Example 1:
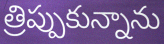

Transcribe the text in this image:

త్రిప్పుకున్నాను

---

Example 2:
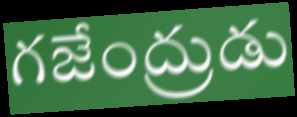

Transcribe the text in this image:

గజేంద్రుడు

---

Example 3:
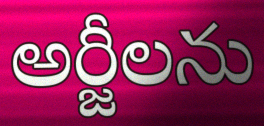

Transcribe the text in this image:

అర్జీలను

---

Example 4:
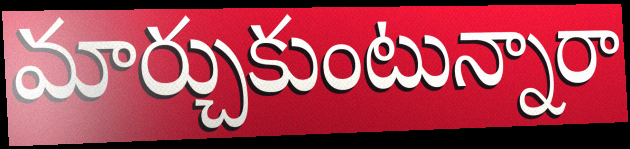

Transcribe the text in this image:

మార్చుకుంటున్నారా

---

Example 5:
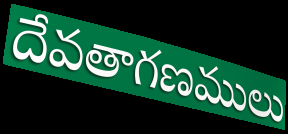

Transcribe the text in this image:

దేవతాగణములు